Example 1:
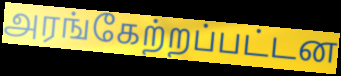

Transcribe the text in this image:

அரங்கேற்றப்பட்டன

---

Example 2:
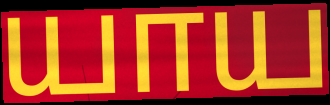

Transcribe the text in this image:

யாய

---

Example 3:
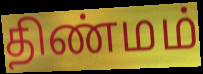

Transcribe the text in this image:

திண்மம்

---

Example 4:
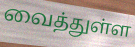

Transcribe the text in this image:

வைத்துள்ள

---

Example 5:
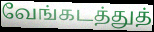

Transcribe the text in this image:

வேங்கடத்துத்